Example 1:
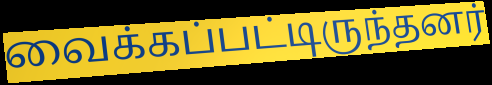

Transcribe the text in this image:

வைக்கப்பட்டிருந்தனர்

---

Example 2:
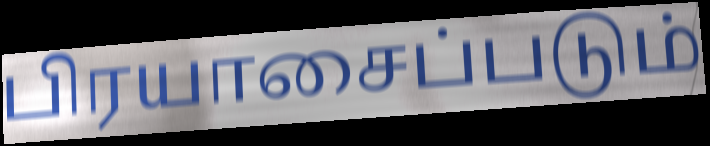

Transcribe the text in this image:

பிரயாசைப்படும்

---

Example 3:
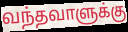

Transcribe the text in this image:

வந்தவாளுக்கு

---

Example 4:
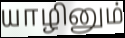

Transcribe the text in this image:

யாழினும்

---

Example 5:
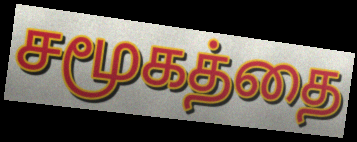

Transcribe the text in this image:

சமூகத்தை